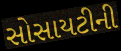
સોસાયટીની